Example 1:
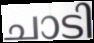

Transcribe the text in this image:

ചാടി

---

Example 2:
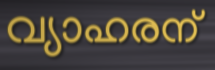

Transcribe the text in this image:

വ്യാഹരന്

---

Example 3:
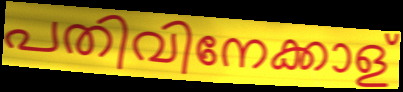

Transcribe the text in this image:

പതിവിനേക്കാള്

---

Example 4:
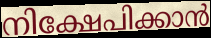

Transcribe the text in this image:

നിക്ഷേപിക്കാൻ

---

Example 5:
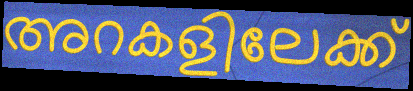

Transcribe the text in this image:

അറകളിലേക്ക്